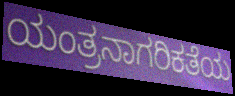
ಯಂತ್ರನಾಗರಿಕತೆಯ